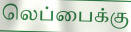
லெப்பைக்கு